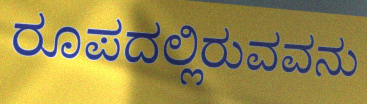
ರೂಪದಲ್ಲಿರುವವನು